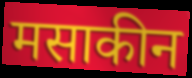
मसाकीन